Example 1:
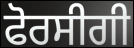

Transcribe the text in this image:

ਫੋਰਸੀਗੀ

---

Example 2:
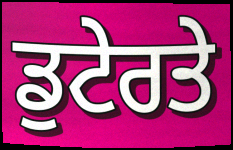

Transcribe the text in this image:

ਡੁਟੇਰਤੇ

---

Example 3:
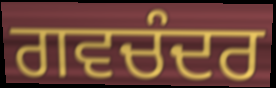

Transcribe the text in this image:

ਗਵਚੰਦਰ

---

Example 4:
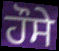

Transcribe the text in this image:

ਹੌਸੇ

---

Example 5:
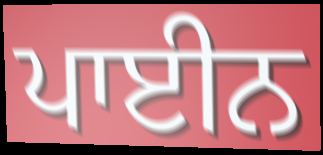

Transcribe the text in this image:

ਪਾਈਨ